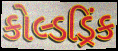
કોલ્ડડ્રિંક